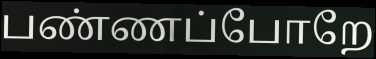
பண்ணப்போறே